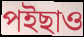
পইছাও